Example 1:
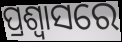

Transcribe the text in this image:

ପ୍ରଶ୍ବାସରେ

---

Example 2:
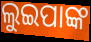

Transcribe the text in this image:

ଲୁଇପାଙ୍କ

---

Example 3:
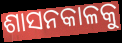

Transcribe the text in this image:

ଶାସନକାଳକୁ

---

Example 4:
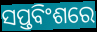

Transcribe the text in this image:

ସପ୍ତବିଂଶରେ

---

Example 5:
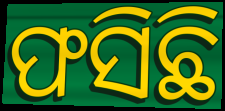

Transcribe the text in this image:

ଫସିଛି